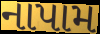
નાપામ